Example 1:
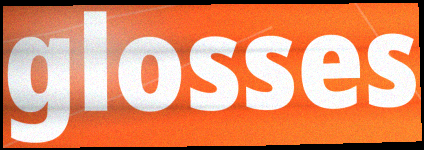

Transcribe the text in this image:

glosses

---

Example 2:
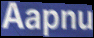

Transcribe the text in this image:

Aapnu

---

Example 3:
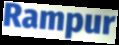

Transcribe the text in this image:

Rampur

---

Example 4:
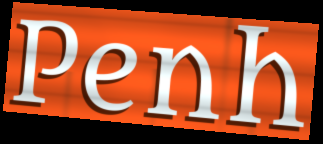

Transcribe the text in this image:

Penh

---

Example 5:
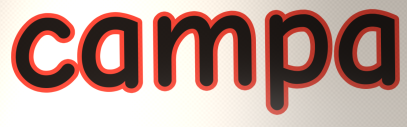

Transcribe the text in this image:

campa